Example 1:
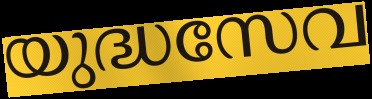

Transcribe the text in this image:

യുദ്ധസേവ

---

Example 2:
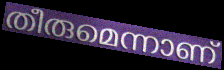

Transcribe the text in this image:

തീരുമെന്നാണ്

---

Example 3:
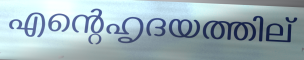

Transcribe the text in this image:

എന്റെഹൃദയത്തില്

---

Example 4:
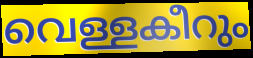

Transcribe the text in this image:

വെള്ളകീറും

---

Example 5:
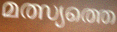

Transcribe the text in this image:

മത്സ്യത്തെ